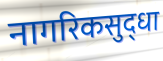
नागरिकसुद्धा